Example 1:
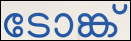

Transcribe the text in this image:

ടോങ്ക്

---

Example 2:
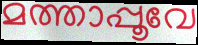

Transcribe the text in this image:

മത്താപ്പൂവേ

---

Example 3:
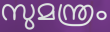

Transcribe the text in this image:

സുമന്ത്രം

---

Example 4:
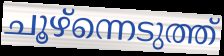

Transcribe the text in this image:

ചൂഴ്ന്നെടുത്ത്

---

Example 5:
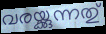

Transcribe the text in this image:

വരയ്ക്കുന്നതു്